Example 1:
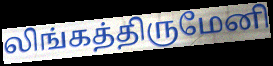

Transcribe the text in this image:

லிங்கத்திருமேனி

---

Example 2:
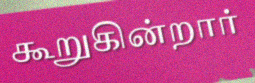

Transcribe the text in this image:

கூறுகின்றார்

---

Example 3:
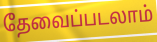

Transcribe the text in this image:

தேவைப்படலாம்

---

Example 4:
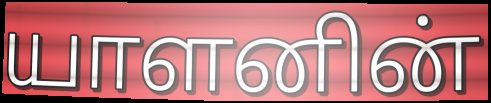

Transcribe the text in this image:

யாளனின்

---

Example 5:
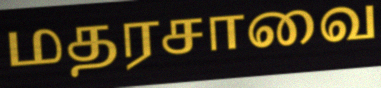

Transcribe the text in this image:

மதரசாவை